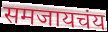
समजायचंय